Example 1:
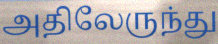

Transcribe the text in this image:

அதிலேருந்து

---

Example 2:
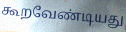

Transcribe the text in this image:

கூறவேண்டியது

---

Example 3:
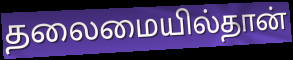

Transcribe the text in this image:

தலைமையில்தான்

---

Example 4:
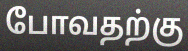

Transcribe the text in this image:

போவதற்கு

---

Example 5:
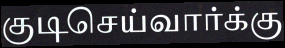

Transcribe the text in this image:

குடிசெய்வார்க்கு